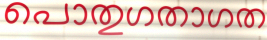
പൊതുഗതാഗത